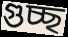
গুচ্ছ